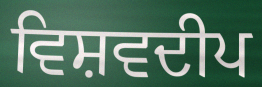
ਵਿਸ਼ਵਦੀਪ